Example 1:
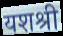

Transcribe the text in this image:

यशश्री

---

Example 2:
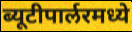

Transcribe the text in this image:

ब्यूटीपार्लरमध्ये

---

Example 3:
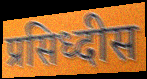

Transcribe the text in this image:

प्रसिध्दीस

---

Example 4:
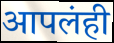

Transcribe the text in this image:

आपलंही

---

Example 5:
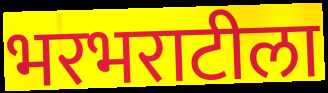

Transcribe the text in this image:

भरभराटीला